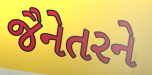
જૈનેતરને